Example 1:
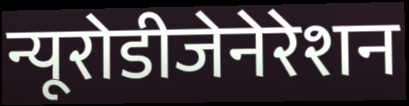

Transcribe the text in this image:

न्यूरोडीजेनेरेशन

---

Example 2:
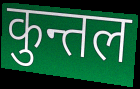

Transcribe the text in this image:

कुन्तल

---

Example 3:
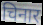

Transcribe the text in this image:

चिनार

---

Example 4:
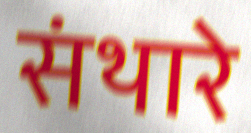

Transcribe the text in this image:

संथारे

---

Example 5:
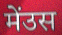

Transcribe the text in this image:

मेंउस